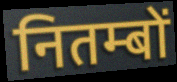
नितम्बों